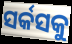
ସର୍କସକୁ